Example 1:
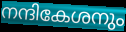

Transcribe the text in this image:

നന്ദികേശനും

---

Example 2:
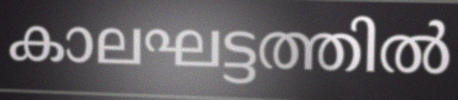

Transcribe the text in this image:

കാലഘട്ടത്തിൽ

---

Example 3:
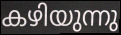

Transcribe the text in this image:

കഴിയുന്നു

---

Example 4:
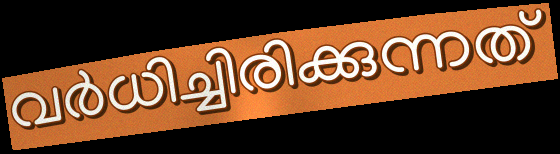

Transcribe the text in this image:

വർധിച്ചിരിക്കുന്നത്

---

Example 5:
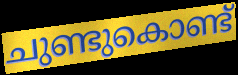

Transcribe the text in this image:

ചുണ്ടുകൊണ്ട്